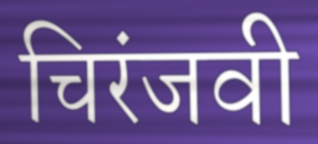
चिरंजवी